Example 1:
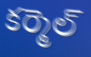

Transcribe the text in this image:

కర్మెల్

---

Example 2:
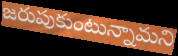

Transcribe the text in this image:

జరుపుకుంటున్నామని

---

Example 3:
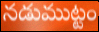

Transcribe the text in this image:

నడుముట్టం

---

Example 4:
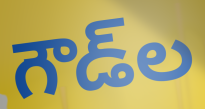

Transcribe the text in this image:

గౌడ్‌ల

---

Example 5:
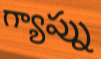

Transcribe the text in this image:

గ్యాప్ను